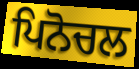
ਪਿਨੋਚਲ